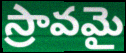
స్రావమై